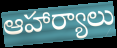
ఆహార్యాలు